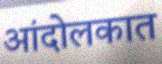
आंदोलकात